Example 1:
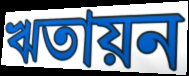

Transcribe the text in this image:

ঋতায়ন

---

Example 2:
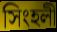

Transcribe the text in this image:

সিংহলী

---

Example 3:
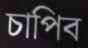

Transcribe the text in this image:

চাপিব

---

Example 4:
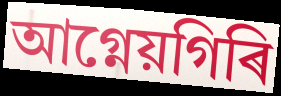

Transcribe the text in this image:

আগ্নেয়গিৰি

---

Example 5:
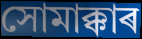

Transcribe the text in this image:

সোমাক্কাৰ